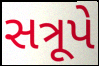
સત્રૂપે